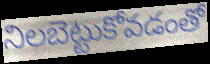
నిలబెట్టుకోవడంతో